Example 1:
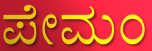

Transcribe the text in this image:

ಪೇಮಂ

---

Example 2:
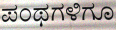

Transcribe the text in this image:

ಪಂಥಗಳಿಗೂ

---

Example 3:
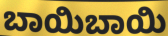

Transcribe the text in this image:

ಬಾಯಿಬಾಯಿ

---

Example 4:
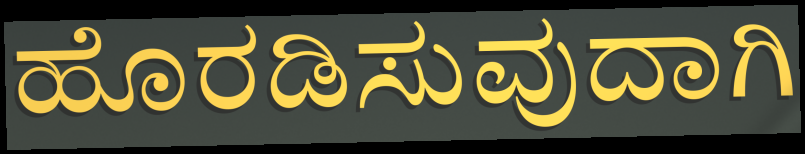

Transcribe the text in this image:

ಹೊರಡಿಸುವುದಾಗಿ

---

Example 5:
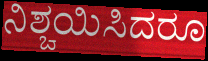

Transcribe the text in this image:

ನಿಶ್ಚಯಿಸಿದರೂ